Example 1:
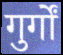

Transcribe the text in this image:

गुर्गों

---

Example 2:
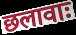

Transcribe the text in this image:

छलावाः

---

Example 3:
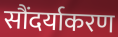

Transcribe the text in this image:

सौंदर्याकरण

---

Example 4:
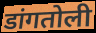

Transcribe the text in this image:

डांगतोली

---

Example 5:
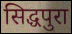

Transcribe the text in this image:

सिद्धपुरा